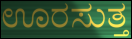
ಊರಸುತ್ತ